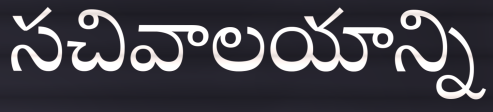
సచివాలయాన్ని